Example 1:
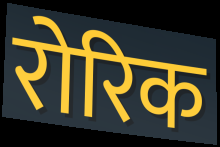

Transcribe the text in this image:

रोरिक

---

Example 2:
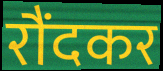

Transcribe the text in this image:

रौंदकर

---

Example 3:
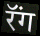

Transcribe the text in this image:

रॅंग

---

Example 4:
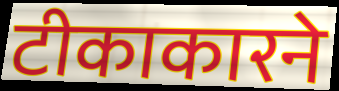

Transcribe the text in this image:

टीकाकारने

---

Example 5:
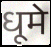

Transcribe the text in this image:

धूमे